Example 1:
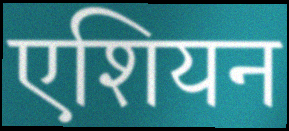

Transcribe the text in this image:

एशियन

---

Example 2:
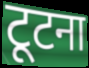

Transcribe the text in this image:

टूटना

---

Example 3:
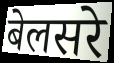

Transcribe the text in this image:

बेलसरे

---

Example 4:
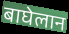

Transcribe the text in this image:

बाघेलान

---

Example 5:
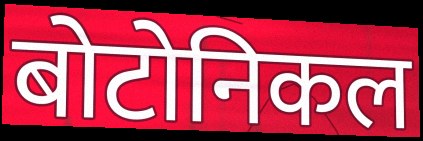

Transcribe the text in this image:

बोटोनिकल